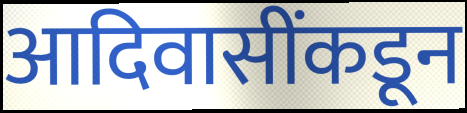
आदिवासींकडून